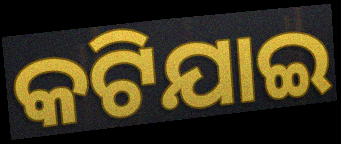
କଟିଯାଇ